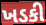
ખડકી